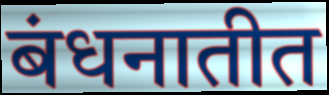
बंधनातीत